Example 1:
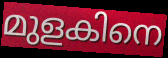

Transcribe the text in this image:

മുളകിനെ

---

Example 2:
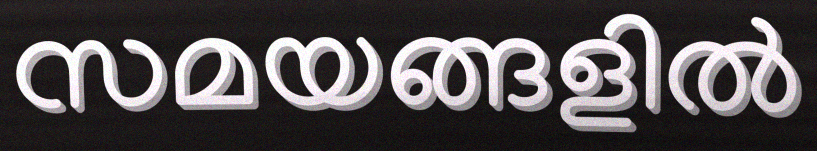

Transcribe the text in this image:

സമയങ്ങളിൽ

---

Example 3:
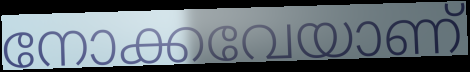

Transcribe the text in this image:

നോക്കവേയാണ്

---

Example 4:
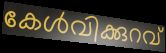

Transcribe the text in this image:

കേൾവിക്കുറവ്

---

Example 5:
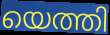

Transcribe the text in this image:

യെത്തി